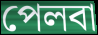
পেলবা